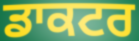
ਡਾਕਟਰ